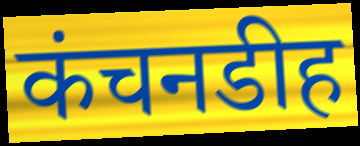
कंचनडीह